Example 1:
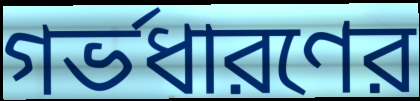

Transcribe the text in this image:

গর্ভধারণের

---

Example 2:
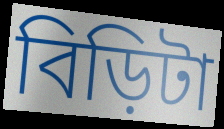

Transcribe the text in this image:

বিড়িটা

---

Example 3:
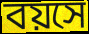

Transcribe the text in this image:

বয়সে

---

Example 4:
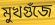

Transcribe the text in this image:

মুখগুঁজে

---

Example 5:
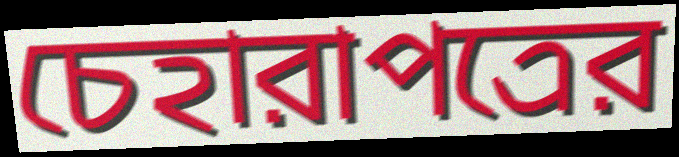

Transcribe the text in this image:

চেহারাপত্রের